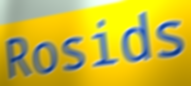
Rosids